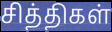
சித்திகள்